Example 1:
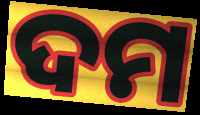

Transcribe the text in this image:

ଦମ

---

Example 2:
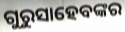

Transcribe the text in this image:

ଗୁରୁସାହେବଙ୍କର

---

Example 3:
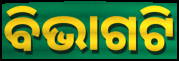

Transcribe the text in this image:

ବିଭାଗଟି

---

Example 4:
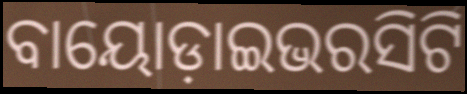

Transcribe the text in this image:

ବାୟୋଡ଼ାଇଭରସିଟି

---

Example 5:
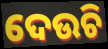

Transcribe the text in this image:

ଦେଉଚି